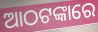
ଆଠଟଙ୍କାରେ